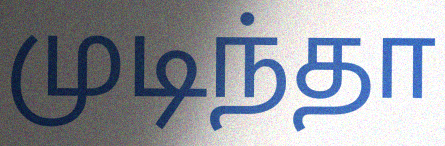
முடிந்தா